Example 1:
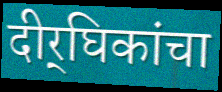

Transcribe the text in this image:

दीर्घिकांचा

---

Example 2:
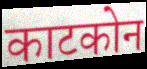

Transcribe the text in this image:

काटकोन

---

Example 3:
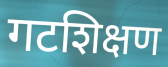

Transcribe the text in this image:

गटशिक्षण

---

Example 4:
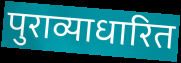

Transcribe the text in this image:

पुराव्याधारित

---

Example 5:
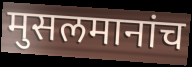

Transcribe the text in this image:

मुसलमानांच